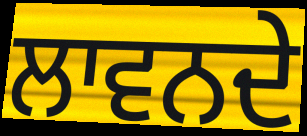
ਲਾਵਨਦੇ